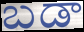
బడా